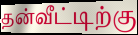
தன்வீட்டிற்கு